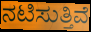
ನಟಿಸುತ್ತಿವೆ